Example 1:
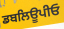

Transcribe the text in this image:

ਡਬਲਿਊਪੀਓ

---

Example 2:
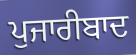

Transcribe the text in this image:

ਪੁਜਾਰੀਬਾਦ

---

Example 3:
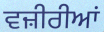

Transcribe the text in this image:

ਵਜ਼ੀਰੀਆਂ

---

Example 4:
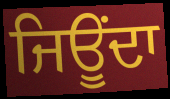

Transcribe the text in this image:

ਜਿਊੂਂਦਾ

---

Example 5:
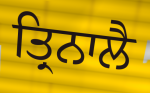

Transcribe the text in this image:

ਤ੍ਰਿਨਾਲੈ